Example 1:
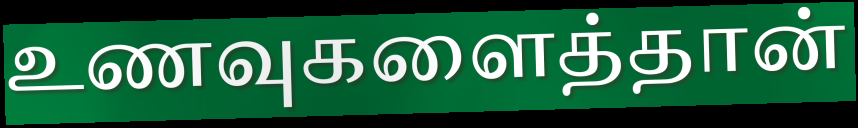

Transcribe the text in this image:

உணவுகளைத்தான்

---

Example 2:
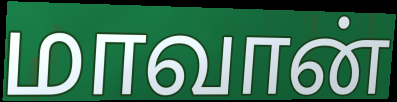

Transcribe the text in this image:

மாவான்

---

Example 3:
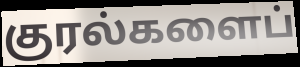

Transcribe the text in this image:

குரல்களைப்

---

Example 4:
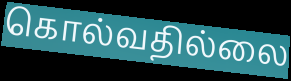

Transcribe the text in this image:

கொல்வதில்லை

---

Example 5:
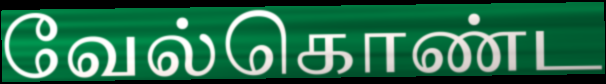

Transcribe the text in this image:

வேல்கொண்ட